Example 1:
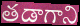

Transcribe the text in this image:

తడాగాని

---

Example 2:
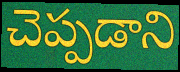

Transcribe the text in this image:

చెప్పడాని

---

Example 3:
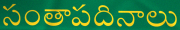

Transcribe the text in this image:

సంతాపదినాలు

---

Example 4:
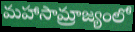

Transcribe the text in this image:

మహాసామ్రాజ్యంలో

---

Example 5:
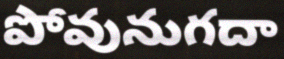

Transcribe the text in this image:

పోవునుగదా